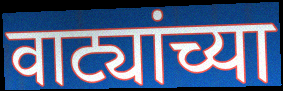
वाट्यांच्या